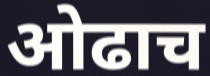
ओढाच